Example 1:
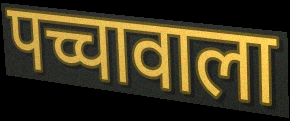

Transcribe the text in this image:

पच्चावाला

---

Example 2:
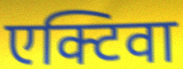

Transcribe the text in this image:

एक्टिवा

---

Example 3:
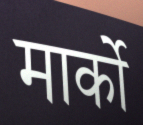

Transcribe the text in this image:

मार्को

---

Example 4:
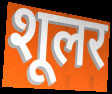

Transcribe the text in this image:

शूलर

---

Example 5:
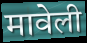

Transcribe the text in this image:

मावेली